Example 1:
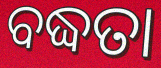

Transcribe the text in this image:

ବଦ୍ଧତା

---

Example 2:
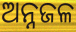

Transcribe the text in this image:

ଅନ୍ନଜଳ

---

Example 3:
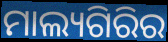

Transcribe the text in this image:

ମାଲ୍ୟଗିରିର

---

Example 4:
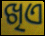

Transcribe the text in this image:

ଖିଏ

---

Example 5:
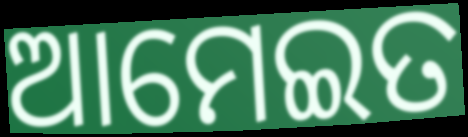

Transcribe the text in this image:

ଆମେଇତ